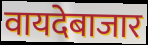
वायदेबाजार